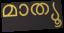
മാത്യൂ